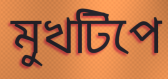
মুখটিপে